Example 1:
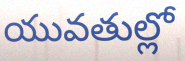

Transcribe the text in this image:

యువతుల్లో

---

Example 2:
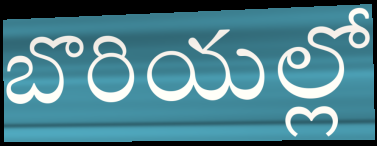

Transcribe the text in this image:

బొరియల్లో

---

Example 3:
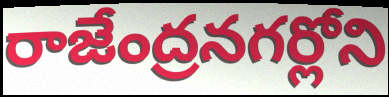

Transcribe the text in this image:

రాజేంద్రనగర్లోని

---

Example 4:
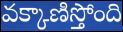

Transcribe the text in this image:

వక్కాణిస్తోంది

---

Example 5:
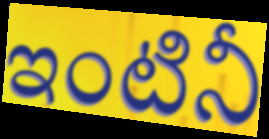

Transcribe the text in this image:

ఇంటినీ